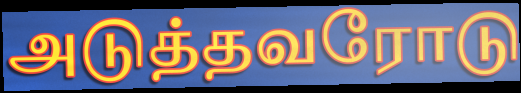
அடுத்தவரோடு